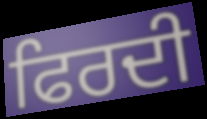
ਫਿਰਦੀ